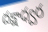
దక్షాధ్వర